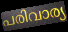
പരിവാര്യ